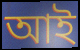
আই